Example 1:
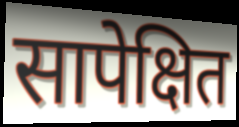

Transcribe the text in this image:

सापेक्षित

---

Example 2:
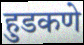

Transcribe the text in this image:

हुडकणे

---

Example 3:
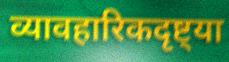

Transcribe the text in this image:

व्यावहारिकदृष्ट्या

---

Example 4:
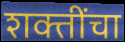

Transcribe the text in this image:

शक्तींचा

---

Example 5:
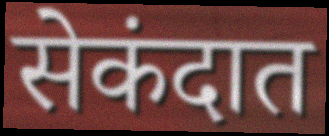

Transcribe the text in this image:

सेकंदात